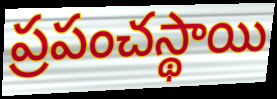
ప్రపంచస్థాయి